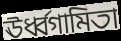
ঊর্ধ্বগামিতা